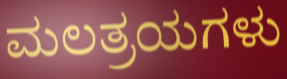
ಮಲತ್ರಯಗಳು